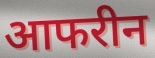
आफरीन